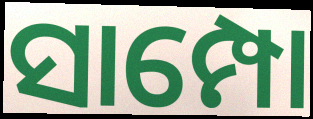
ସାମ୍ପୋ